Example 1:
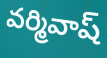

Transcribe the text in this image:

వర్మివాష్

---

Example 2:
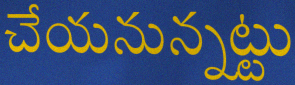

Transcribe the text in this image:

చేయనున్నట్టు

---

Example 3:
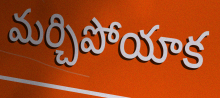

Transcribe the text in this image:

మర్చిపోయాక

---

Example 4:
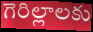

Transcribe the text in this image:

గెరిల్లాలకు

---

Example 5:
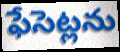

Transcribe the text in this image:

ఫేసెట్లను